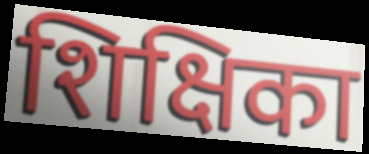
शिक्षिका